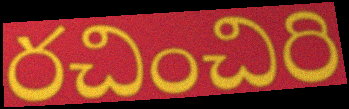
రచించిరి